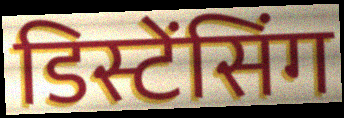
डिस्टेंसिंग